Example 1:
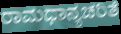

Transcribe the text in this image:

ರಾಮಧಾನ್ಯಚರಿತೆ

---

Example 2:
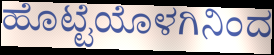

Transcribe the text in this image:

ಹೊಟ್ಟೆಯೊಳಗಿನಿಂದ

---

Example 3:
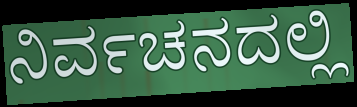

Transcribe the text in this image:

ನಿರ್ವಚನದಲ್ಲಿ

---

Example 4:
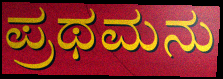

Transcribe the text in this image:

ಪ್ರಥಮನು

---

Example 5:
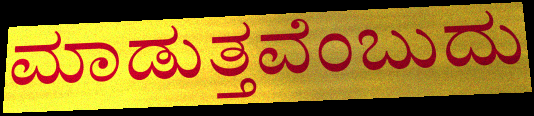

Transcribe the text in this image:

ಮಾಡುತ್ತವೆಂಬುದು